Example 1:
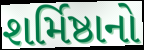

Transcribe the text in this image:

શર્મિષ્ઠાનો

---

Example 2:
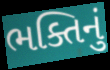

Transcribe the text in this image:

ભક્તિનું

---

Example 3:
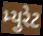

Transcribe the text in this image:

મ્યુરેટ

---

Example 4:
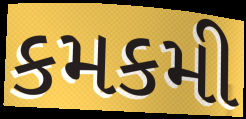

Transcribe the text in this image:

કમકમી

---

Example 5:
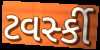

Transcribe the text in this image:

ટવર્સ્કી